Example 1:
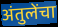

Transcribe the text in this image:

अंतुलेंचा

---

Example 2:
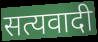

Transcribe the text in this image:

सत्यवादी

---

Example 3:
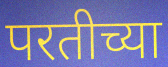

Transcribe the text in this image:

परतीच्या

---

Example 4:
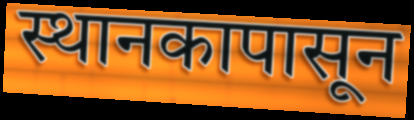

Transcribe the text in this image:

स्थानकापासून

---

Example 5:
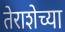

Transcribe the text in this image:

तेराशेच्या